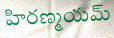
హిరణ్మయమ్